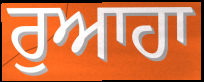
ਰੁਆਹਾ